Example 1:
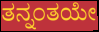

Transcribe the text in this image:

ತನ್ನಂತಯೇ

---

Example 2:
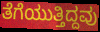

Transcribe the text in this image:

ತೆಗೆಯುತ್ತಿದ್ದವು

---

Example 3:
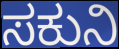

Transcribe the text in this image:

ಸಕುನಿ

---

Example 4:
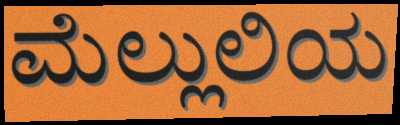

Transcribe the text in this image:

ಮೆಲ್ಲುಲಿಯ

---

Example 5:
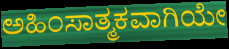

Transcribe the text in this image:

ಅಹಿಂಸಾತ್ಮಕವಾಗಿಯೇ